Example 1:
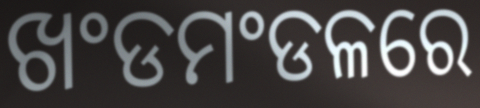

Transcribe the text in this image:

ଖଂଡମଂଡଳରେ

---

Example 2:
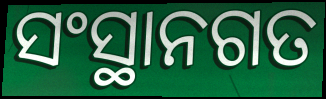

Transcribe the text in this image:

ସଂସ୍ଥାନଗତ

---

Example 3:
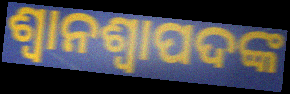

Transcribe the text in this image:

ଶ୍ୱାନଶ୍ୱାପଦଙ୍କ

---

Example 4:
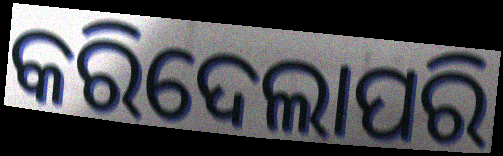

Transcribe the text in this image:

କରିଦେଲାପରି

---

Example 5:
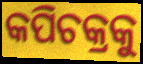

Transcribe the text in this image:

କପିଚକ୍ରକୁ